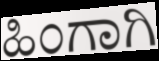
ಹಿಂಗಾಗಿ